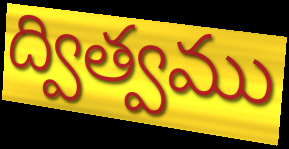
ద్విత్వము